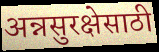
अन्नसुरक्षेसाठी